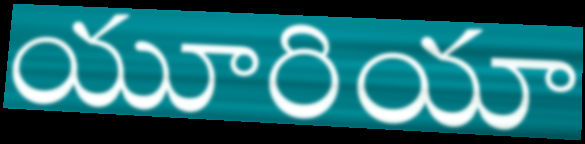
యూరియా